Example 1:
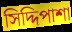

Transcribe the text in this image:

সিদ্দিপাশা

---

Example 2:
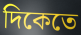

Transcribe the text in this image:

দিকেতে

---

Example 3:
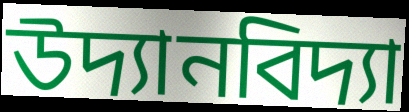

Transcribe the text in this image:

উদ্যানবিদ্যা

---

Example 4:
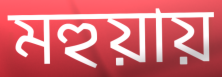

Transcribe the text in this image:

মহুয়ায়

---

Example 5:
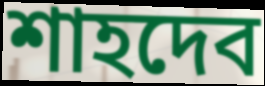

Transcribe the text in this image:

শাহদেব